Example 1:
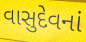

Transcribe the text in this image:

વાસુદેવનાં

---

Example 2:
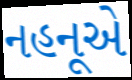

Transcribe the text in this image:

નહનૂએ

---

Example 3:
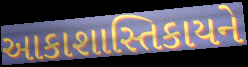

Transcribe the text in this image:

આકાશાસ્તિકાયને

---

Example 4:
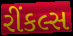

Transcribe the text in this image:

રીંકલ્સ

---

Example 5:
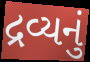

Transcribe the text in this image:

દ્રવ્યનું